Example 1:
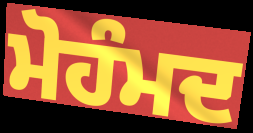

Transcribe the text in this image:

ਮੋਹੰਮਦ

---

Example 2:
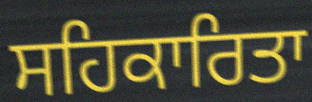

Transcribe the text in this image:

ਸਹਿਕਾਰਿਤਾ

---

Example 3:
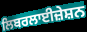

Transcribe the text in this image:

ਲਿਬਰਲਾਈਜ਼ੇਸ਼ਨ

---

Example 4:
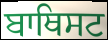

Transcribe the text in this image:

ਬਾਥਿਸਟ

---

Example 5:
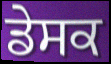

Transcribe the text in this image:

ਡੇਸਕ